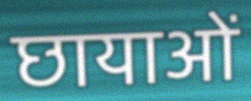
छायाओं